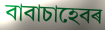
বাবাচাহেবৰ